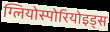
ग्लियोस्पोरियोइड्स